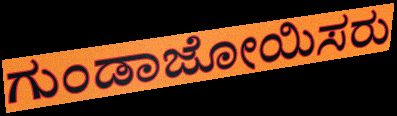
ಗುಂಡಾಜೋಯಿಸರು